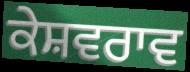
ਕੇਸ਼ਵਰਾਵ